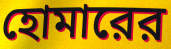
হোমারের